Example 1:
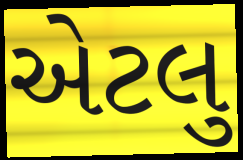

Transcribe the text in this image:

એટલુ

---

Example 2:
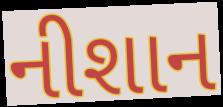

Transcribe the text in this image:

નીશાન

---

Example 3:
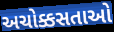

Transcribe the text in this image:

અચોક્કસતાઓ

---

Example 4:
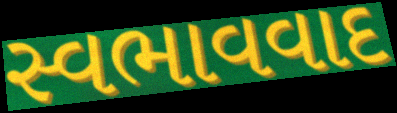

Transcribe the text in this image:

સ્વભાવવાદ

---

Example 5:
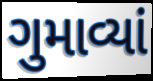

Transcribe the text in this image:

ગુમાવ્યાં